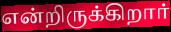
என்றிருக்கிறார்